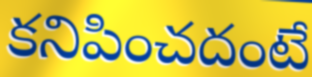
కనిపించదంటే